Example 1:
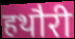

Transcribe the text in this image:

हथौरी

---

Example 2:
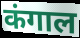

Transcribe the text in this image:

कंगाल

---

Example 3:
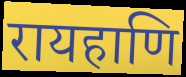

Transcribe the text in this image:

रायहाणि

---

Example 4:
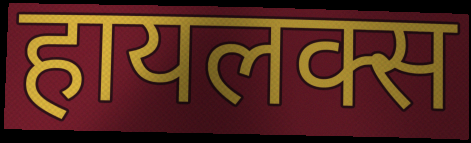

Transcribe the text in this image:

हायलक्स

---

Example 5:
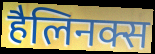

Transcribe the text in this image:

हैलिनक्स